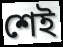
শেই